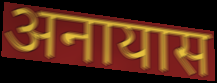
अनायास